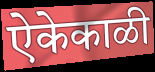
ऐकेकाळी